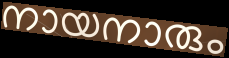
നായനാരും